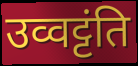
उव्वट्टंति